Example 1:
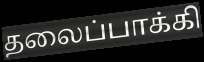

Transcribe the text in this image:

தலைப்பாக்கி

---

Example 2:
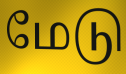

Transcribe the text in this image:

மேடு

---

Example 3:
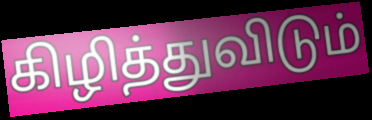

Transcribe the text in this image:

கிழித்துவிடும்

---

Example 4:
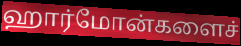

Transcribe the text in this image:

ஹார்மோன்களைச்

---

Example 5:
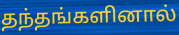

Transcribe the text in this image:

தந்தங்களினால்